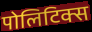
पोलिटिक्स